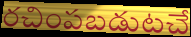
రచింపబడుటచే